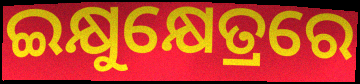
ଇକ୍ଷୁକ୍ଷେତ୍ରରେ